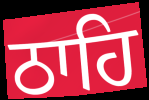
ਠਾਹਿ